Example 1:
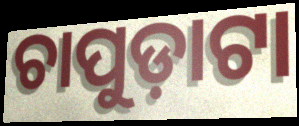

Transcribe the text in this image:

ଚାପୁଡ଼ାଟା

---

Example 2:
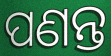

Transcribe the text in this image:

ପଣନ୍ତ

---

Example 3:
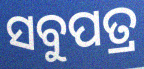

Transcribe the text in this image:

ସବୁପତ୍ର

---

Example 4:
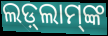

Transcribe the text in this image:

ଲଡ଼୍‍ଲାମ୍‍ଙ୍କ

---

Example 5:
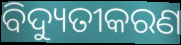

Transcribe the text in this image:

ବିଦ୍ୟୁତୀକରଣ